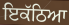
ਇਕੱਠਿਆ